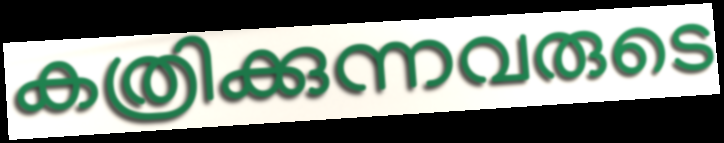
കത്രിക്കുന്നവരുടെ